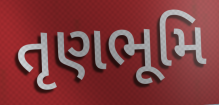
તૃણભૂમિ